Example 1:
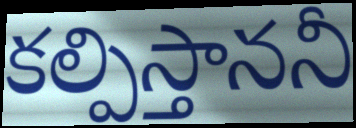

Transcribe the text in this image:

కల్పిస్తాననీ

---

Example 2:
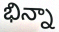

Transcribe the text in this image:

భిన్నా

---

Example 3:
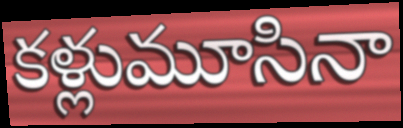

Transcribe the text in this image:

కళ్లుమూసినా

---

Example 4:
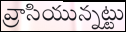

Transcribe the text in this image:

వ్రాసియున్నట్టు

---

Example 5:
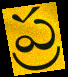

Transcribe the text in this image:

ప్ర